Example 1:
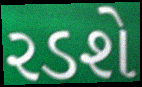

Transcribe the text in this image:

રડશે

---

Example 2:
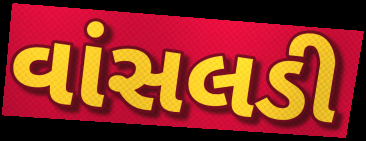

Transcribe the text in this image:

વાંસલડી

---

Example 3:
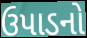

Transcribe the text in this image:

ઉપાડનો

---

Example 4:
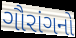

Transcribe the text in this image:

ગૌરાંગનો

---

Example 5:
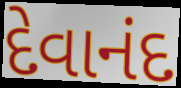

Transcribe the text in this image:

દેવાનંદ